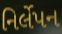
નિર્લેપન